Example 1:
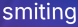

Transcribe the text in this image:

smiting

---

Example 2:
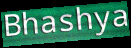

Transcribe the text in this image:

Bhashya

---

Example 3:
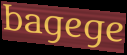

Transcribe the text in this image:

bagege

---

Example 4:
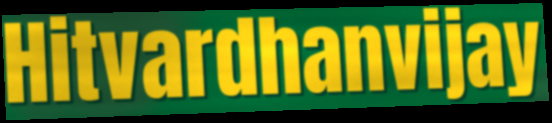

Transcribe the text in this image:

Hitvardhanvijay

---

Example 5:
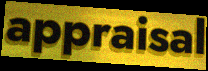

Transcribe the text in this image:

appraisal